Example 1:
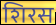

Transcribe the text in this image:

शिरस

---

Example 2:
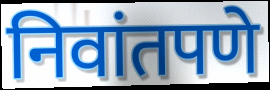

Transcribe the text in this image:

निवांतपणे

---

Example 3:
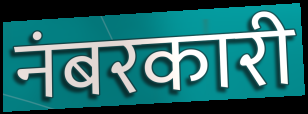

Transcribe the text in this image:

नंबरकारी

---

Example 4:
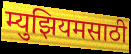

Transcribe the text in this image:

म्युझियमसाठी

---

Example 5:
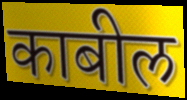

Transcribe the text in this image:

काबील